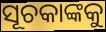
ସୂଚକାଙ୍କକୁ